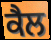
ਕੈਲ